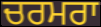
ਚਰਮਰਾ